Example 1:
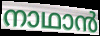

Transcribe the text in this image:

നാഥാൻ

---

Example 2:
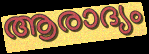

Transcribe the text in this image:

ആരാദ്യം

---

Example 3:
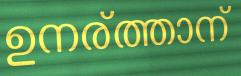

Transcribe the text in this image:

ഉനര്ത്താന്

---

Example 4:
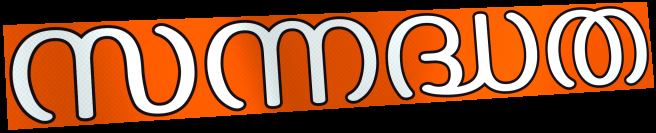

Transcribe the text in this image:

സന്നദ്ധത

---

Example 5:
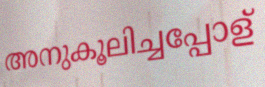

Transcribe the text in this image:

അനുകൂലിച്ചപ്പോള്